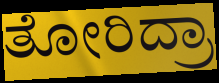
ತೋರಿದ್ರಾ